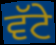
ਵੱਟੇ